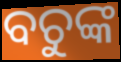
ବଚୁଙ୍କ